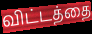
விட்டத்தை